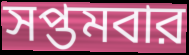
সপ্তমবার